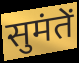
सुमंतें